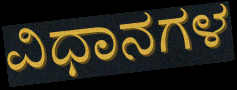
ವಿಧಾನಗಳ